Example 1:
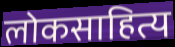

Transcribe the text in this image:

लोकसाहित्य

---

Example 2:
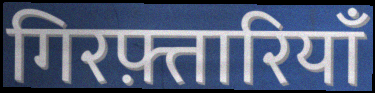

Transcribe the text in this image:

गिरफ़्तारियाँ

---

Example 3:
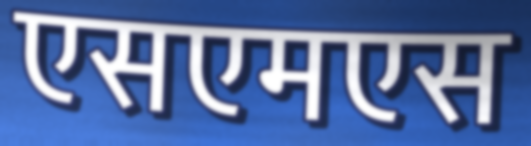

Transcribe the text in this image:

एसएमएस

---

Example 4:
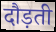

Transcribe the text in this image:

दौड़ती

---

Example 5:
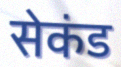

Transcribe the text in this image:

सेकंड